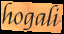
hogali